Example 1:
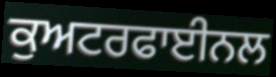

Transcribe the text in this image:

ਕੁਅਟਰਫਾਈਨਲ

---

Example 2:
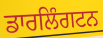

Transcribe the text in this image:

ਡਾਰਲਿੰਗਟਨ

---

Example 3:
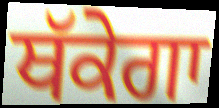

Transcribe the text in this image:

ਥੱਕੇਗਾ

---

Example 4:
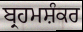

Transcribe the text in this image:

ਬ੍ਰਹਮਸ਼ੰਕਰ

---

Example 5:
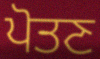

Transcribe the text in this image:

ਪੋਤਣ